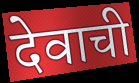
देवाची